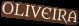
OLIVEIRA